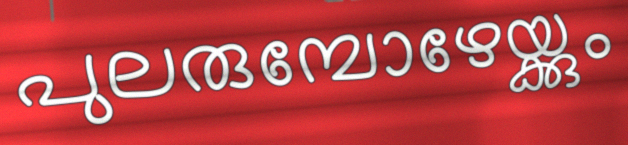
പുലരുമ്പോഴേയ്ക്കും